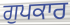
ਗੁਪਕਾਰ